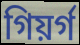
গিয়ৰ্গ